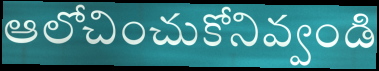
ఆలోచించుకోనివ్వండి